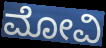
ಮೋವಿ